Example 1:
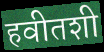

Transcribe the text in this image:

हवीतशी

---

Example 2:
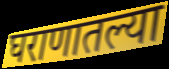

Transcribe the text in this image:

घराणातल्या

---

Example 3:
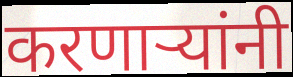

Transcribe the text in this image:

करणाऱ्यांनी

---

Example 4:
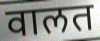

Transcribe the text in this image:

वालत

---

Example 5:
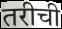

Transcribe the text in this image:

तरीची